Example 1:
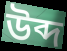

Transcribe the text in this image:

উব্দ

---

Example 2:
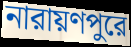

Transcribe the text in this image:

নারায়ণপুরে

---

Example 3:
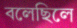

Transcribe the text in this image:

বলেছিলে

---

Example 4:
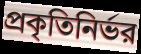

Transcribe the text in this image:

প্রকৃতিনির্ভর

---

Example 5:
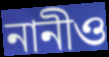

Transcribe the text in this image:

নানীও